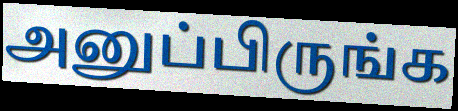
அனுப்பிருங்க